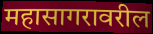
महासागरावरील